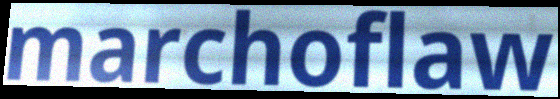
marchoflaw